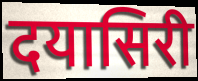
दयासिरी